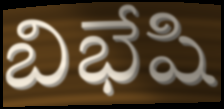
బిభేషి